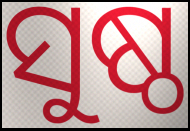
ସୁଷ୍ଠ